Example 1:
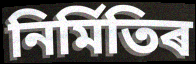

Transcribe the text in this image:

নিৰ্মিতিৰ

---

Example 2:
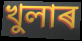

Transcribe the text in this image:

খুলাৰ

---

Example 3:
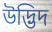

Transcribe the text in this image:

উদ্ভিদ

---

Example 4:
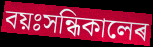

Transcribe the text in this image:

বয়ঃসন্ধিকালেৰ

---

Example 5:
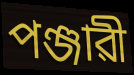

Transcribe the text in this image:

পঞ্জাৱী